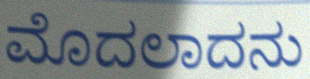
ಮೊದಲಾದನು